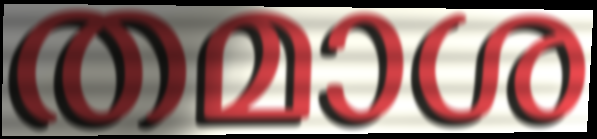
തമാശ